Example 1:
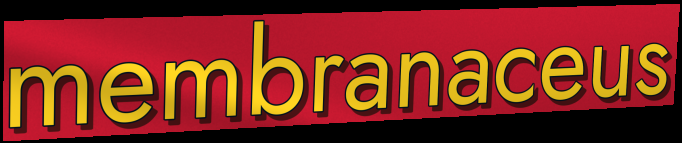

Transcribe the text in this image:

membranaceus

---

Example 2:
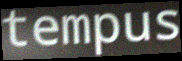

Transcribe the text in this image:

tempus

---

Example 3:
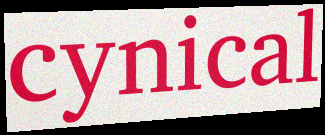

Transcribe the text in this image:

cynical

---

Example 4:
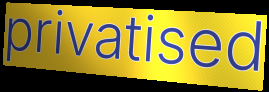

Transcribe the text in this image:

privatised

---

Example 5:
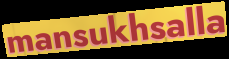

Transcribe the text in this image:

mansukhsalla